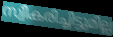
സ്വീകരിച്ചിട്ടുമില്ല